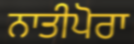
ਨਾਤੀਪੋਰਾ